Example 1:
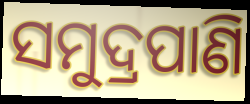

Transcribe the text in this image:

ସମୁଦ୍ରପାଣି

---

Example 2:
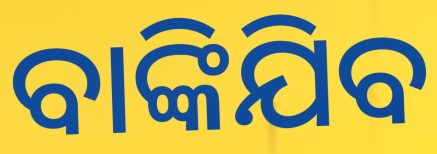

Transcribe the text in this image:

ବାଙ୍କିଯିବ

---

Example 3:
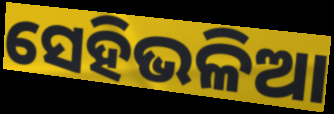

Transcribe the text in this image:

ସେହିଭଳିଆ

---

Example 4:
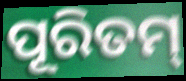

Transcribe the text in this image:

ପୂରିତମ୍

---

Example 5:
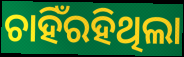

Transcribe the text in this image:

ଚାହିଁରହିଥିଲା